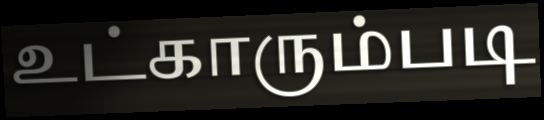
உட்காரும்படி